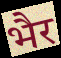
भैर